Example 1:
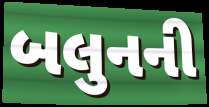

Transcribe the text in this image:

બલુનની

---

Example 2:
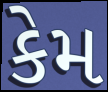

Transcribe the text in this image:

કેમ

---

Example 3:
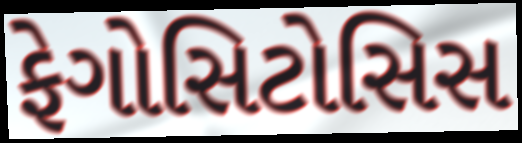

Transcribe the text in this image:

ફેગોસિટોસિસ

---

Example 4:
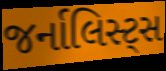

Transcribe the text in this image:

જર્નાલિસ્ટ્સ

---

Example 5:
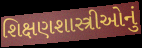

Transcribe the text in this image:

શિક્ષણશાસ્ત્રીઓનું